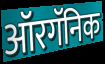
ऑरगॅनिक